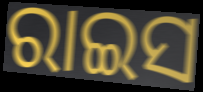
ରାଇସ